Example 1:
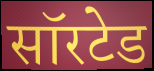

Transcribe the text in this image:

सॉरटेड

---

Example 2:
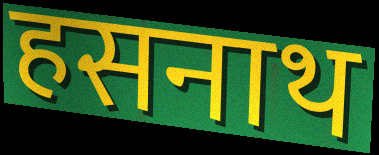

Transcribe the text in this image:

हसनाथ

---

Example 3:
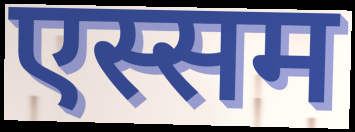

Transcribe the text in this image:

एस्सम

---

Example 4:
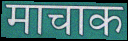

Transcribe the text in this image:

माचाक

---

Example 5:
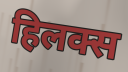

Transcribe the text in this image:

हिलक्स